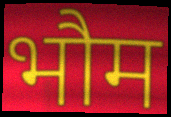
भौम